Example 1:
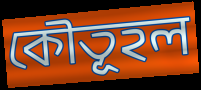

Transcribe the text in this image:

কৌতূহল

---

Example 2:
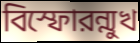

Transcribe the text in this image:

বিস্ফোরন্মুখ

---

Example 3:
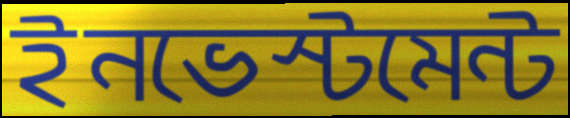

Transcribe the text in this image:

ইনভেস্টমেন্ট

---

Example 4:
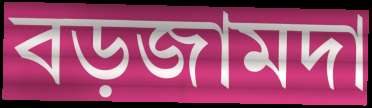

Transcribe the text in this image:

বড়জামদা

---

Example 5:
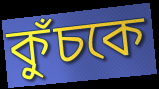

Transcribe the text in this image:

কুঁচকে